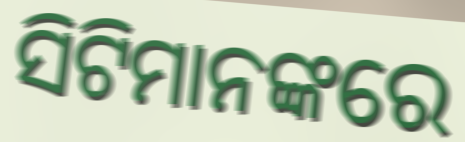
ସିଟିମାନଙ୍କରେ